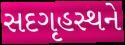
સદગૃહસ્થને